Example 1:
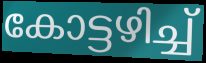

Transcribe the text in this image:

കോട്ടഴിച്ച്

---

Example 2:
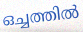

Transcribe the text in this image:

ഒച്ചത്തിൽ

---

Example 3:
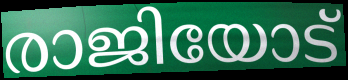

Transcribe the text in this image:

രാജിയോട്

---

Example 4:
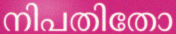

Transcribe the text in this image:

നിപതിതോ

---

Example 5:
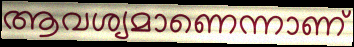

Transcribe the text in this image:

ആവശ്യമാണെന്നാണ്